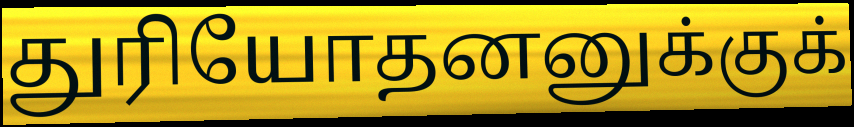
துரியோதனனுக்குக்